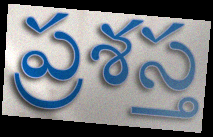
ప్రశస్త